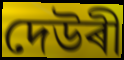
দেউৰী